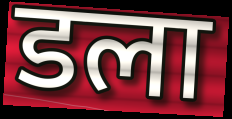
डला